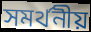
সমর্থনীয়